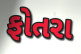
ફોતરા